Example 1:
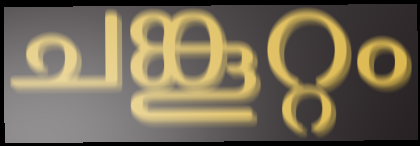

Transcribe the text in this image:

ചങ്കൂറ്റം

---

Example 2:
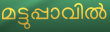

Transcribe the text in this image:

മട്ടുപ്പാവിൽ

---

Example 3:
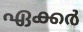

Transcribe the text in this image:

ഏക്കർ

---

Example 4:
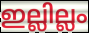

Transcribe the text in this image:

ഇല്ലില്ലം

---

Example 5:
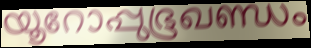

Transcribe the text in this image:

യൂറോപ്പുഭൂഖണ്ഡം